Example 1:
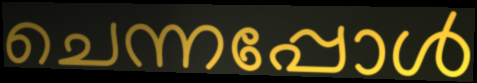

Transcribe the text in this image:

ചെന്നപ്പോൾ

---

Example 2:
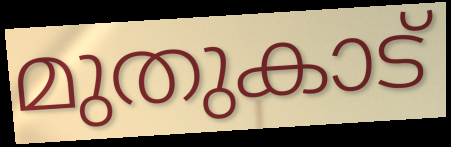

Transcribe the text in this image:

മുതുകാട്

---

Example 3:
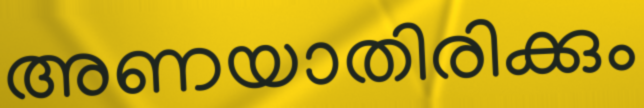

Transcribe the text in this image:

അണയാതിരിക്കും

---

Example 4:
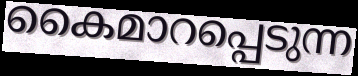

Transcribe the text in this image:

കൈമാറപ്പെടുന്ന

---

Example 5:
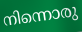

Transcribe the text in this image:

നിന്നൊരു